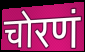
चोरणं